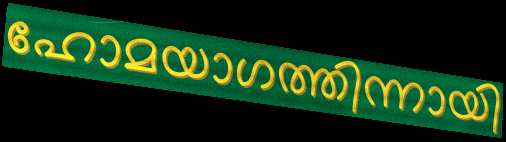
ഹോമയാഗത്തിന്നായി